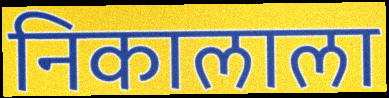
निकालाला